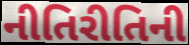
નીતિરીતિની